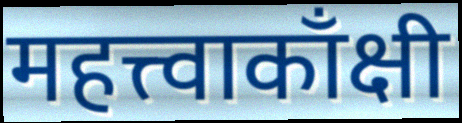
महत्त्वाकाँक्षी